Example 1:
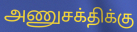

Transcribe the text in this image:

அணுசக்திக்கு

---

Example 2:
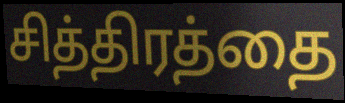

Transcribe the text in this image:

சித்திரத்தை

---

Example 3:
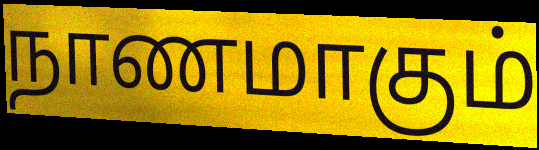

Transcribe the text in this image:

நாணமாகும்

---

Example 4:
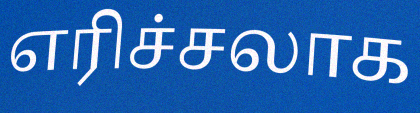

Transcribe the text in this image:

எரிச்சலாக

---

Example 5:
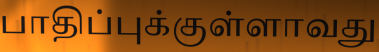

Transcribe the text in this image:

பாதிப்புக்குள்ளாவது